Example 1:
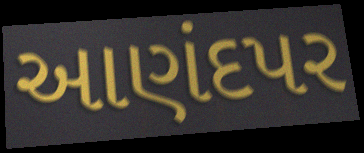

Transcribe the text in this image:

આણંદપર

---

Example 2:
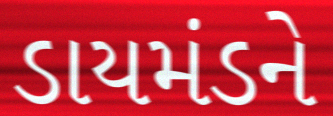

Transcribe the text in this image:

ડાયમંડને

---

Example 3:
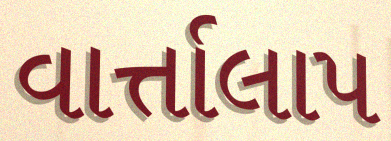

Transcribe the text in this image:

વાર્ત્તાલાપ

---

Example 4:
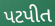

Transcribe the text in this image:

પટપીત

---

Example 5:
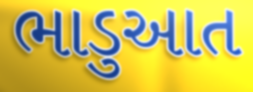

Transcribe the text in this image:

ભાડુઆત